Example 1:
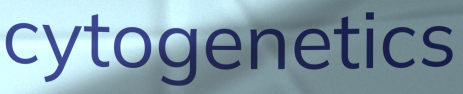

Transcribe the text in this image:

cytogenetics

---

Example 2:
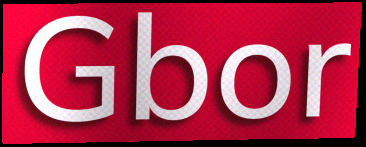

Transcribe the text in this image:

Gbor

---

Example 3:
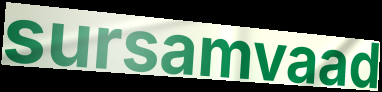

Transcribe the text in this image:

sursamvaad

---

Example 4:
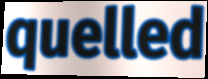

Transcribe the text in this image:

quelled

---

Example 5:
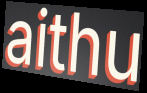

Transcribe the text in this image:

aithu